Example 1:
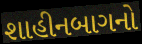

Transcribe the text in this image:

શાહીનબાગનો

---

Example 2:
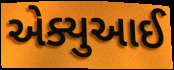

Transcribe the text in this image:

એક્યુઆઈ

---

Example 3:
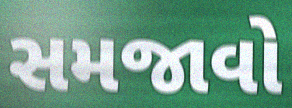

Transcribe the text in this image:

સમજાવો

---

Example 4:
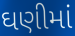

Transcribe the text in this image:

ઘણીમાં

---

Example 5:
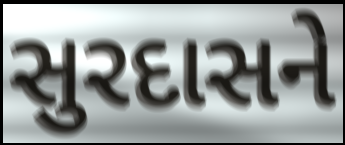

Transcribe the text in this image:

સુરદાસને